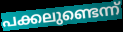
പക്കലുണ്ടെന്ന്